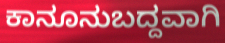
ಕಾನೂನುಬದ್ದವಾಗಿ